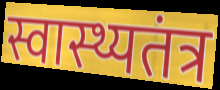
स्वास्थ्यतंत्र